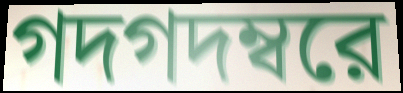
গদগদম্বরে